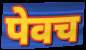
पेवच